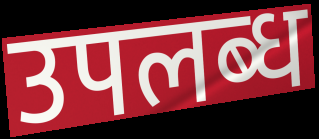
उपलब्ध